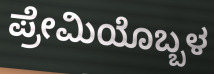
ಪ್ರೇಮಿಯೊಬ್ಬಳ